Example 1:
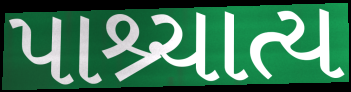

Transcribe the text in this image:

પાશ્ર્ચાત્ય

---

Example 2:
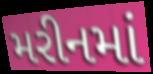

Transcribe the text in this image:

મરીનમાં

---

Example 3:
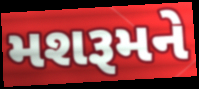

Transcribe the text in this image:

મશરૂમને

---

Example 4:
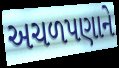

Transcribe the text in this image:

અચળપણાને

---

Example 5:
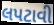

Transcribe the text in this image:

લપટાવી